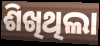
ଶିଖିଥିଲା